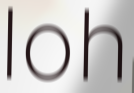
loh